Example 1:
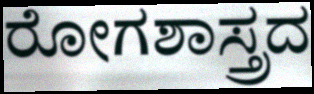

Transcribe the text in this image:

ರೋಗಶಾಸ್ತ್ರದ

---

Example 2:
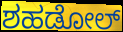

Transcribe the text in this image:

ಶಹಡೋಲ್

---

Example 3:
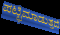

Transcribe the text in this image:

ಪಟ್ಟಿಮಾಡುತ್ತದೆ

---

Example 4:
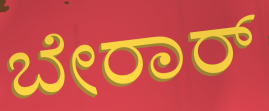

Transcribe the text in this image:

ಬೇರಾರ್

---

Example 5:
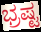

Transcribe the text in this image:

ಭ್ರಷ್ಟ